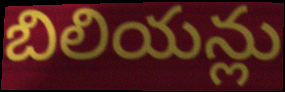
బిలియన్లు